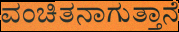
ವಂಚಿತನಾಗುತ್ತಾನೆ